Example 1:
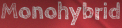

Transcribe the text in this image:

Monohybrid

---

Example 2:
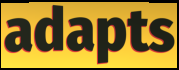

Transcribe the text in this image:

adapts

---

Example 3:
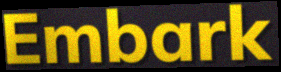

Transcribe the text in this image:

Embark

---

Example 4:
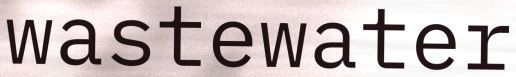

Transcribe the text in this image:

wastewater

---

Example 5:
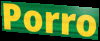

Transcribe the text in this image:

Porro